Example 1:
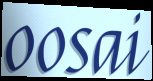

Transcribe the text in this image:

oosai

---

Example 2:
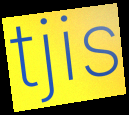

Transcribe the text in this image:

tjis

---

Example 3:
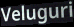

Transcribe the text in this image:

Veluguri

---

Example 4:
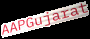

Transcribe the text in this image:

AAPGujarat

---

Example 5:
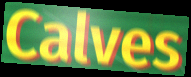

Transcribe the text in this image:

Calves